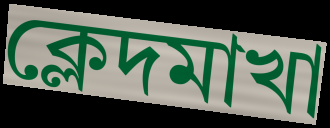
ক্লেদমাখা